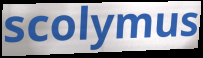
scolymus